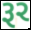
રૂર